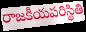
రాజకీయపరిస్థితి